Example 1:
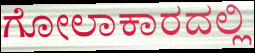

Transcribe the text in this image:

ಗೋಲಾಕಾರದಲ್ಲಿ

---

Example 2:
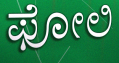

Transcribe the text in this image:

ಫೋಲಿ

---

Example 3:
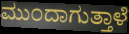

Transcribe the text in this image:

ಮುಂದಾಗುತ್ತಾಳೆ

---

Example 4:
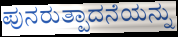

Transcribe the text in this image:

ಪುನರುತ್ಪಾದನೆಯನ್ನು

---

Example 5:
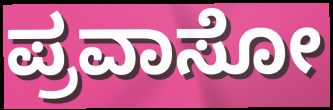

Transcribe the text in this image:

ಪ್ರವಾಸೋ